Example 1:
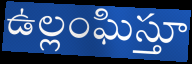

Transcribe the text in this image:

ఉల్లంఘిస్తూ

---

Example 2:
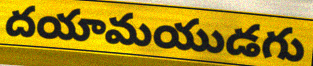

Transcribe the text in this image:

దయామయుడగు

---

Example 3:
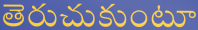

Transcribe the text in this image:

తెరుచుకుంటూ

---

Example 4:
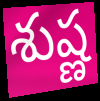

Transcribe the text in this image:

శుష్ణ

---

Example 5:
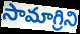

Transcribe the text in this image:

సామాగ్రిని